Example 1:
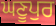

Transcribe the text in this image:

ਘਣੂਪੁਰ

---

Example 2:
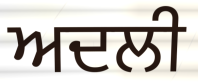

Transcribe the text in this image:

ਅਦਲੀ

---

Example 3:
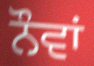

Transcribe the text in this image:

ਨੌਵਾਂ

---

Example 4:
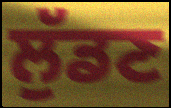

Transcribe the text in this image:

ਲੁੱਡਣ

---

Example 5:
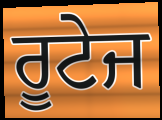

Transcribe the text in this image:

ਰੂਟੇਜ